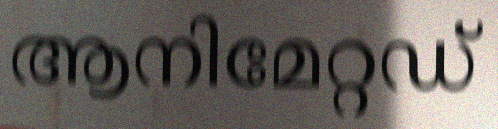
ആനിമേറ്റഡ്